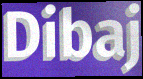
Dibaj